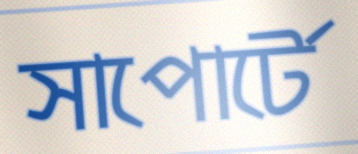
সাপোর্টে